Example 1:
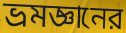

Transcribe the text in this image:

ভ্রমজ্ঞানের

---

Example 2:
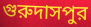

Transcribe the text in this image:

গুরুদাসপুর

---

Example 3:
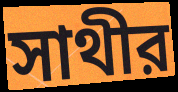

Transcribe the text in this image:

সাথীর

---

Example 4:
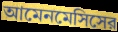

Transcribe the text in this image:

আমেনমেসিসের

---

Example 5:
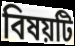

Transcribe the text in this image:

বিষয়টি